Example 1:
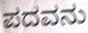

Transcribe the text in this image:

ಪದವನು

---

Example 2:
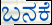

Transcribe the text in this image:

ಬನಕೆ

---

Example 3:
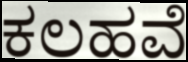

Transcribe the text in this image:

ಕಲಹವೆ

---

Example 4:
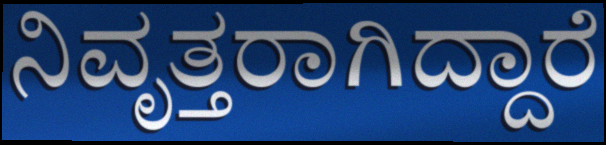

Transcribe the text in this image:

ನಿವೃತ್ತರಾಗಿದ್ದಾರೆ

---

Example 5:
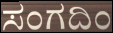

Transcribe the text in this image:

ಸಂಗದಿಂ